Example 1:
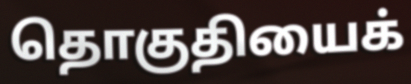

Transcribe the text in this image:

தொகுதியைக்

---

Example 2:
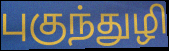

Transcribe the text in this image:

புகுந்துழி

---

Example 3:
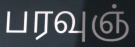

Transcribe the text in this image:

பரவுஞ்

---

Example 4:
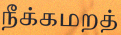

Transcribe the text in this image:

நீக்கமறத்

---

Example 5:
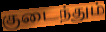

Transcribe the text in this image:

குடைந்தும்